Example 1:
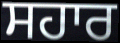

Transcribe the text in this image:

ਸਹਾਰ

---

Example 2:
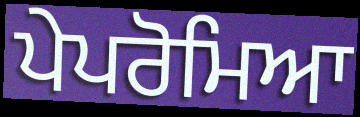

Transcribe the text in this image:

ਪੇਪਰੋਮਿਆ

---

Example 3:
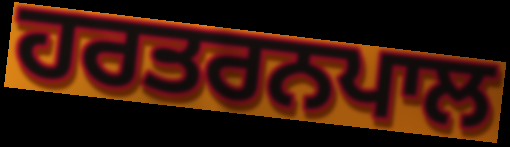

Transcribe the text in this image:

ਹਰਤਰਨਪਾਲ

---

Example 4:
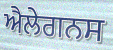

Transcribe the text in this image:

ਐਲੇਗਨਸ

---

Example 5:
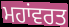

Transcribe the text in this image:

ਮਹਾਂਵਰਤ